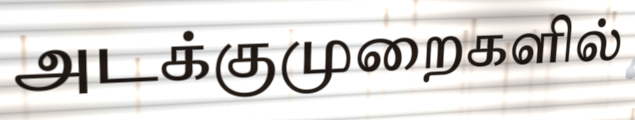
அடக்குமுறைகளில்